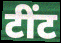
टींट